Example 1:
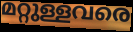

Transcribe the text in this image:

മറ്റുള്ളവരെ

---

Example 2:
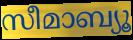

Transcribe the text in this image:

സീമാബ്യൂ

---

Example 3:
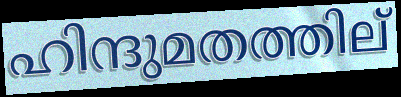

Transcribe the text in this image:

ഹിന്ദുമതത്തില്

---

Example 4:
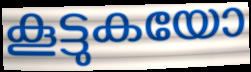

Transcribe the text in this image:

കൂട്ടുകയോ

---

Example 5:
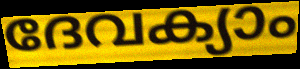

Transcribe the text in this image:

ദേവക്യാം